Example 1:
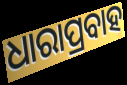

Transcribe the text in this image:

ଧାରାପ୍ରବାହ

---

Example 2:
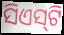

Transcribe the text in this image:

ସିଏସ୍‌ଟି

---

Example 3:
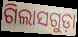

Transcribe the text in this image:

ଗିଲାସଗୁଡ଼ା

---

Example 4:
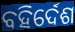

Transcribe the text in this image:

ବହିର୍ଦେଶ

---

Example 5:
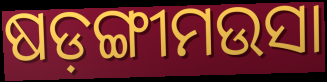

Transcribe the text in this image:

ଷଡ଼ଙ୍ଗୀମଉସା